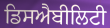
ਡਿਸਐਬੀਲਿਟੀ